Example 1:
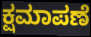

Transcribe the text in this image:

ಕ್ಷಮಾಪಣೆ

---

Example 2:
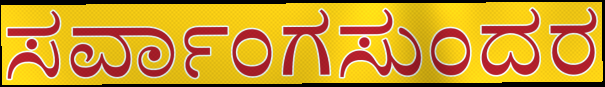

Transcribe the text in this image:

ಸರ್ವಾಂಗಸುಂದರ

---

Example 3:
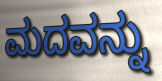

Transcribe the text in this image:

ಮದವನ್ನು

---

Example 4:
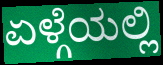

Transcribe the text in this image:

ಏಳ್ಗೆಯಲ್ಲಿ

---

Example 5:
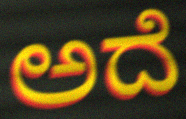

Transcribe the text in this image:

ಅದೆ